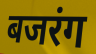
बजरंग